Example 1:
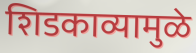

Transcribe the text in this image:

शिडकाव्यामुळे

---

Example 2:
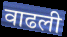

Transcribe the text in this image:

वाढली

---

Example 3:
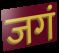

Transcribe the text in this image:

जगं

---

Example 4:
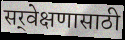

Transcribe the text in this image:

सर्वेक्षणासाठी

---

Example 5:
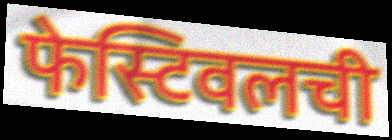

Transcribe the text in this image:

फेस्टिवलची